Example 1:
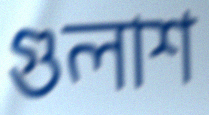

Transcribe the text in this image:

গুলাশ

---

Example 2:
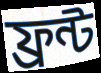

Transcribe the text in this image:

ফ্রন্ট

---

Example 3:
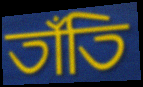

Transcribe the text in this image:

তাঁতি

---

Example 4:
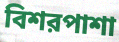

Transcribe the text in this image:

বিশরপাশা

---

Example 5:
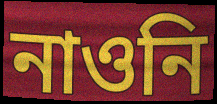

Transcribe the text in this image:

নাওনি